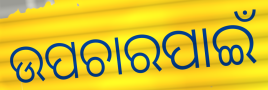
ଉପଚାରପାଇଁ